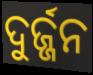
ଦୁର୍ଜ୍ଜନ